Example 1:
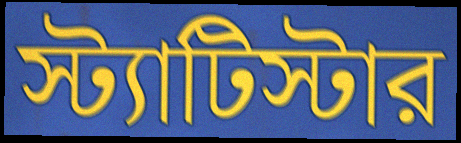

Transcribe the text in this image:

স্ট্যাটিস্টার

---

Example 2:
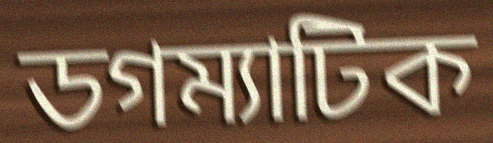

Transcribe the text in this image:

ডগম্যাটিক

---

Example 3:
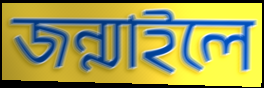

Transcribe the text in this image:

জন্মাইলে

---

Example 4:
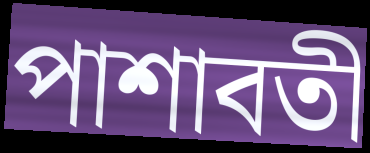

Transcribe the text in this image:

পাশাবতী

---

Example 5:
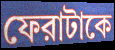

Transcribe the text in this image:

ফেরাটাকে